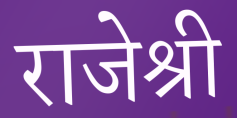
राजेश्री